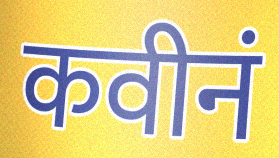
कवीनं